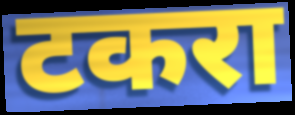
टकरा